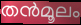
തൻമൂലം